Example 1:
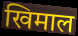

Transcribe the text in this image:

खिमाल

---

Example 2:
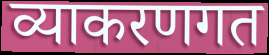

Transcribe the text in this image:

व्याकरणगत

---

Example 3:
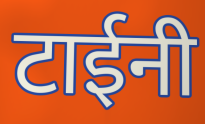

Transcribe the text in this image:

टाईनी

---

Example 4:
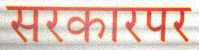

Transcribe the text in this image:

सरकारपर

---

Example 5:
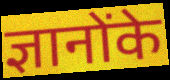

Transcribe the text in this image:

ज्ञानोंके